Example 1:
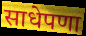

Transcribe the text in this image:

साधेपणा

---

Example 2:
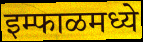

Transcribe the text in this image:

इम्फाळमध्ये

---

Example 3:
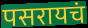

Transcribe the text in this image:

पसरायचं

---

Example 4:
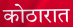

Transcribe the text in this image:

कोठारात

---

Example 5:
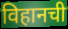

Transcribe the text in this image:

विहानची